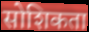
सोशिकता